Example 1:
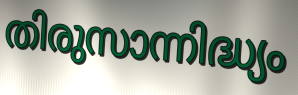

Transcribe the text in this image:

തിരുസാന്നിദ്ധ്യം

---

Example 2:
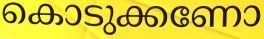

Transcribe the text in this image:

കൊടുക്കണോ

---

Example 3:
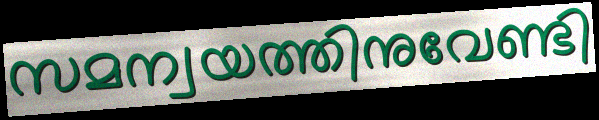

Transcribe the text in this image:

സമന്വയത്തിനുവേണ്ടി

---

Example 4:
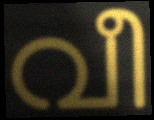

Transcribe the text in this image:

വീ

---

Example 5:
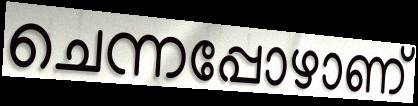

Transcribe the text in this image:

ചെന്നപ്പോഴാണ്